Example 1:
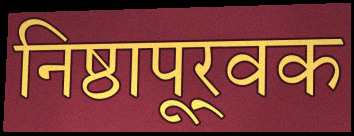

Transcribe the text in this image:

निष्ठापूर्वक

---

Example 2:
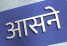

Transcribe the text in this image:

आसने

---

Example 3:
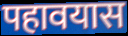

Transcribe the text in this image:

पहावयास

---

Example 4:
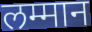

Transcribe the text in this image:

लम्मान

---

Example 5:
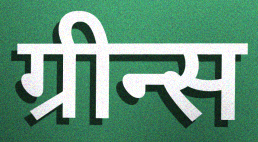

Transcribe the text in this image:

ग्रीन्स